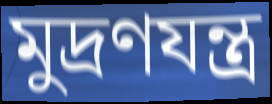
মুদ্রণযন্ত্র